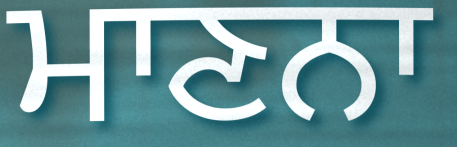
ਮਾਣਨਾ